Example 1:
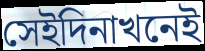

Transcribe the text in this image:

সেইদিনাখনেই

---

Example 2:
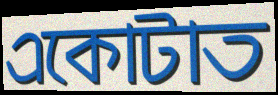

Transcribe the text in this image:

একোটাত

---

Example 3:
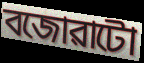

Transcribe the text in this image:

বজোৱাটো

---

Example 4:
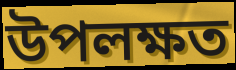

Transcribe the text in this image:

উপলক্ষত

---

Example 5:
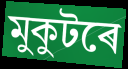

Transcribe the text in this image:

মুকুটৰে